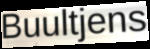
Buultjens